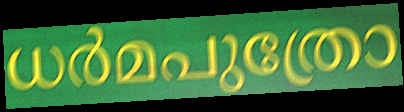
ധർമപുത്രോ